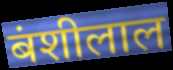
बंशीलाल